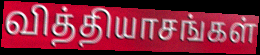
வித்தியாசங்கள்